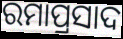
ରମାପ୍ରସାଦ